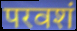
परवशं